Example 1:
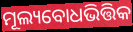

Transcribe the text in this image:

ମୂଲ୍ୟବୋଧଭିତ୍ତିକ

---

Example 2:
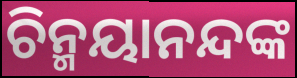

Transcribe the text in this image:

ଚିନ୍ମୟାନନ୍ଦଙ୍କ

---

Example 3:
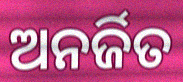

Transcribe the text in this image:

ଅନର୍ଜିତ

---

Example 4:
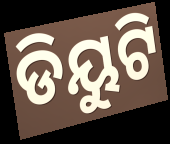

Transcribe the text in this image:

ଡିୟୁଟି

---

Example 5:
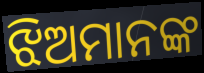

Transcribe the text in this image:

ଝିଅମାନଙ୍କ